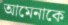
আমেনাকে